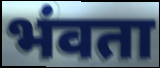
भंवता